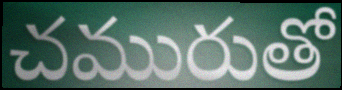
చమురుతో